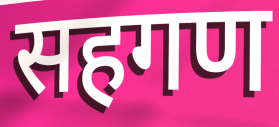
सहगण